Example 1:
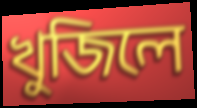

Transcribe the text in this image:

খুজিলে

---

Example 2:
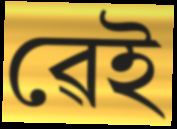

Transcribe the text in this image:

ৱেই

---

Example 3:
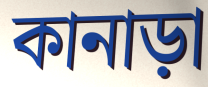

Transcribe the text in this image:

কানাড়া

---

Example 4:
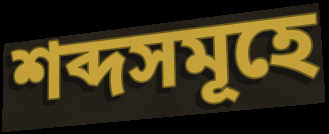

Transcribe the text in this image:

শব্দসমূহে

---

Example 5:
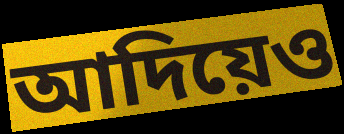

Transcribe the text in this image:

আদিয়েও